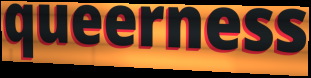
queerness